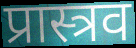
प्रास्त्रव